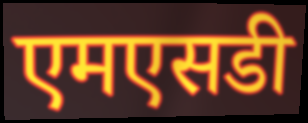
एमएसडी